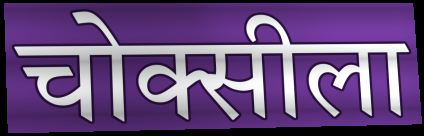
चोक्सीला